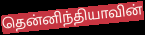
தென்னிந்தியாவின்